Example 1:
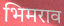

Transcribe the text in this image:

भिमराव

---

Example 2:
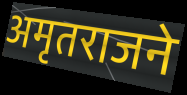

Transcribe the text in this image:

अमृतराजने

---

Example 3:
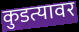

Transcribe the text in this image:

कुडत्यावर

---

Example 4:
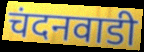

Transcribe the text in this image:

चंदनवाडी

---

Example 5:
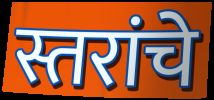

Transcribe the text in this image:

स्तरांचे